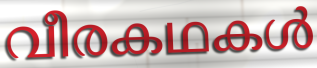
വീരകഥകൾ